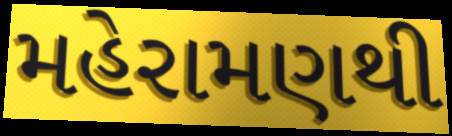
મહેરામણથી